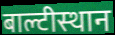
बाल्टीस्थान